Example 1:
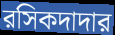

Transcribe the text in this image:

রসিকদাদার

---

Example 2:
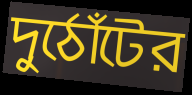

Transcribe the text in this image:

দুঠোঁটের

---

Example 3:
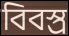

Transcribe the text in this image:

বিবস্ত্র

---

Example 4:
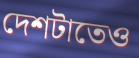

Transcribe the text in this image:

দেশটাতেও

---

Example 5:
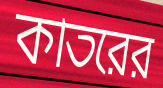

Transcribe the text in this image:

কাতরের